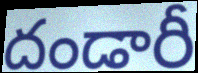
దండారీ